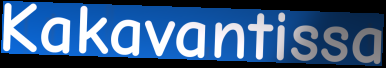
Kakavantissa